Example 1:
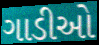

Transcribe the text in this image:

ગાડીઓ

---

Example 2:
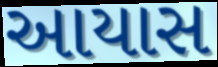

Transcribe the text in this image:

આયાસ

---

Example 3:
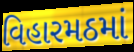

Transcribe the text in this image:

વિહારમઠમાં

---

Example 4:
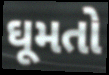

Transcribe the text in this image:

ઘૂમતો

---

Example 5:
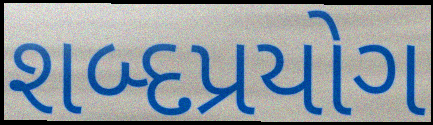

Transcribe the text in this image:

શબ્દપ્રયોગ